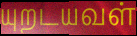
யுறடயவள்